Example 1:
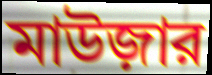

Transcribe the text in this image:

মাউজ়ার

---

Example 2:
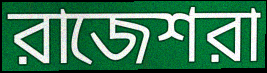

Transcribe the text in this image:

রাজেশরা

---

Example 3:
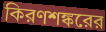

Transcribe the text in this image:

কিরণশঙ্করের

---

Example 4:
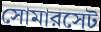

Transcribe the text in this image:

সোমারসেট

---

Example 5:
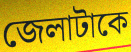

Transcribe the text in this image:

জেলাটাকে